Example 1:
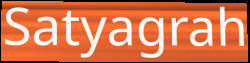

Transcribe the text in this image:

Satyagrah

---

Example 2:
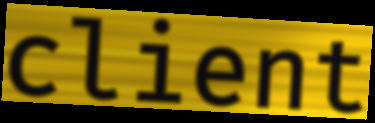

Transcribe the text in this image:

client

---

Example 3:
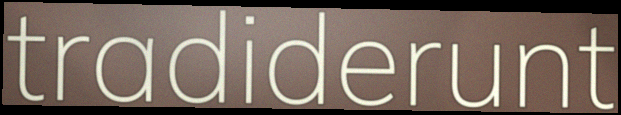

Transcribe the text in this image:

tradiderunt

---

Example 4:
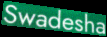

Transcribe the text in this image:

Swadesha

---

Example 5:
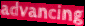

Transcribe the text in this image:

advancing